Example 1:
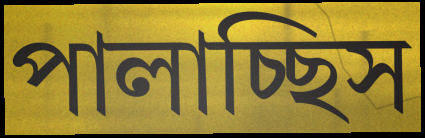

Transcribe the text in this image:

পালাচ্ছিস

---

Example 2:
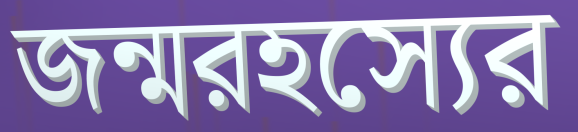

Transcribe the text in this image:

জন্মরহস্যের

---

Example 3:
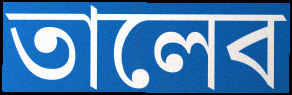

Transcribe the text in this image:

তালেব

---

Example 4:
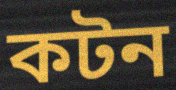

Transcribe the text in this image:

কটন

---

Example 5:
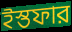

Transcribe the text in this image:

ইস্তফার